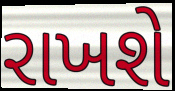
રાખશે